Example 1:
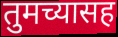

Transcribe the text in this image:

तुमच्यासह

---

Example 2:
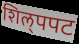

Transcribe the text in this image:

शिल्पपट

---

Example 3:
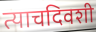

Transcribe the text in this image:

त्याचदिवशी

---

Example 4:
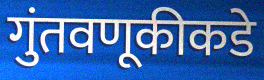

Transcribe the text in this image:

गुंतवणूकीकडे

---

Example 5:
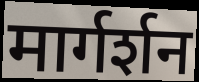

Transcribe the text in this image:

मार्गर्शन